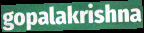
gopalakrishna